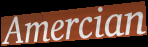
Amercian